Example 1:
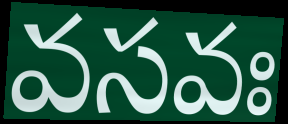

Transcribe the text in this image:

వసవః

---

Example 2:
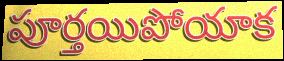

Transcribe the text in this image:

పూర్తయిపోయాక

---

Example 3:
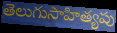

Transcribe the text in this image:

తెలుగుసాహిత్యపు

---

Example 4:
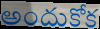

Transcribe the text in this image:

అందుకోక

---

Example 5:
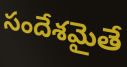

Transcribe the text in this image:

సందేశమైతే